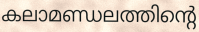
കലാമണ്ഡലത്തിന്റെ